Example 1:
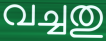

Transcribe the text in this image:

വച്ചതു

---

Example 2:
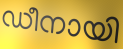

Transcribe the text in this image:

ഡീനായി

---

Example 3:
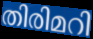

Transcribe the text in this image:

തിരിമറി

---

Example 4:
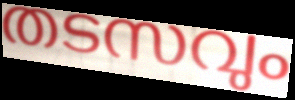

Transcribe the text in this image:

തടസവും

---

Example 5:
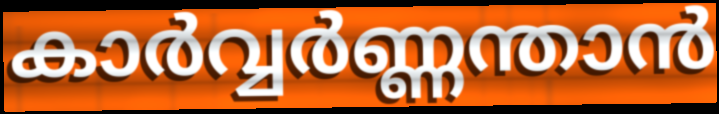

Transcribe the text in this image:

കാർവ്വർണ്ണന്താൻ